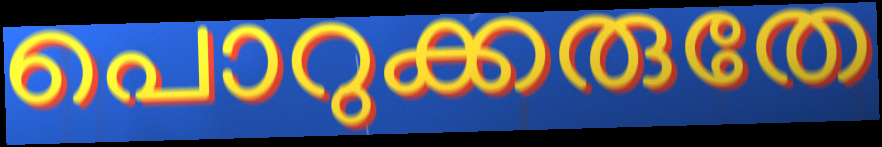
പൊറുക്കരുതേ